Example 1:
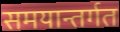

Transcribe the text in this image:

समयान्तर्गत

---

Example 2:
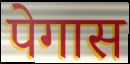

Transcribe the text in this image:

पेगास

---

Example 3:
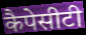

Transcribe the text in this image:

कैपेसीटी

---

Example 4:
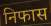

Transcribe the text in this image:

निफास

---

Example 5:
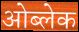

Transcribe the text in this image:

ओब्लेक